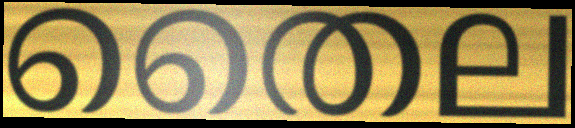
തൈല